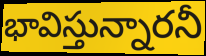
భావిస్తున్నారనీ